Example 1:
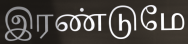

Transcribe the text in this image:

இரண்டுமே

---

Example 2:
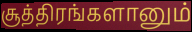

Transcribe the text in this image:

சூத்திரங்களானும்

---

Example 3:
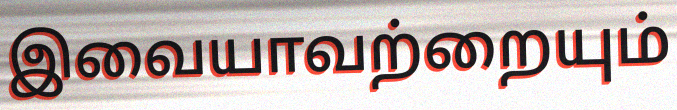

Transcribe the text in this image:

இவையாவற்றையும்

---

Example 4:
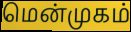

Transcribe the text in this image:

மென்முகம்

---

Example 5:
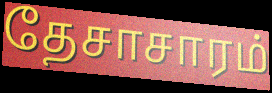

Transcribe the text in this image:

தேசாசாரம்